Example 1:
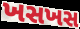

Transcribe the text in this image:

ખસખસ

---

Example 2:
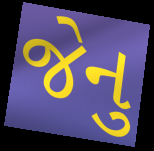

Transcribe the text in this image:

જેનુ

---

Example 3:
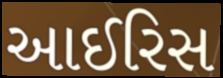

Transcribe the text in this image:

આઈરિસ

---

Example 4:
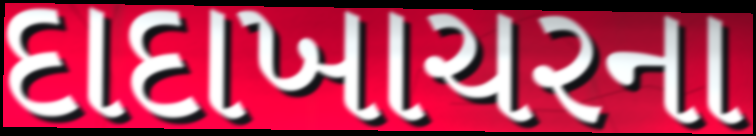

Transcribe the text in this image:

દાદાખાચરના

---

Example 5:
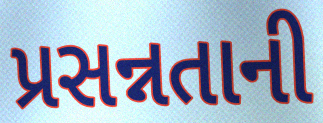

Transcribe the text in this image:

પ્રસન્નતાની